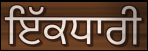
ਇੱਕਧਾਰੀ